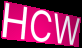
HCW